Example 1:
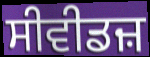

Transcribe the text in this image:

ਸੀਵੀਡਜ਼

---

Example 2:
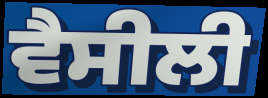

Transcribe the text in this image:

ਵੈਸੀਲੀ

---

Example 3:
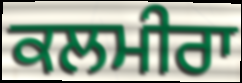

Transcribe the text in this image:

ਕਲਮੀਰਾ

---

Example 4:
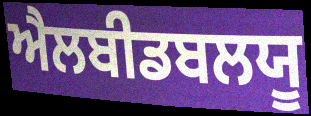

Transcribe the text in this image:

ਐਲਬੀਡਬਲਯੂ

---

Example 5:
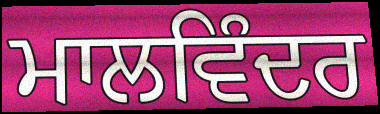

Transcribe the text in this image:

ਮਾਲਵਿੰਦਰ